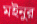
মইনুর